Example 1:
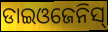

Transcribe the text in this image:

ଡାଇଓଜେନିସ୍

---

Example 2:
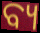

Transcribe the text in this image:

ବ୍ୟ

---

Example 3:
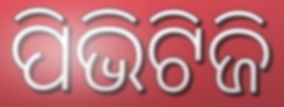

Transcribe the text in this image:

ପିଭିଟିଜି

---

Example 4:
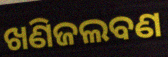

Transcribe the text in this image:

ଖଣିଜଲବଣ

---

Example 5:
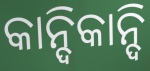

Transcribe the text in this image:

କାନ୍ଦିକାନ୍ଦି